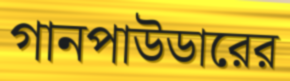
গানপাউডারের